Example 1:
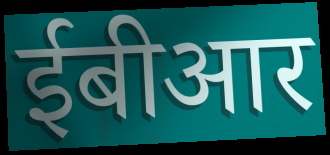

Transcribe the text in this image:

ईबीआर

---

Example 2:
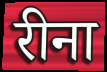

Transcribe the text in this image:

रीना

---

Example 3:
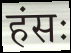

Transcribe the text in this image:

हंसः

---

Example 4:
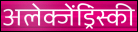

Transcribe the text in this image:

अलेक्जेंड्रिंस्की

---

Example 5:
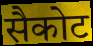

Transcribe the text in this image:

सैकोट